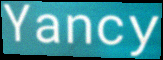
Yancy